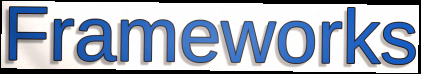
Frameworks